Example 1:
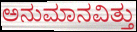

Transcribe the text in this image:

ಅನುಮಾನವಿತ್ತು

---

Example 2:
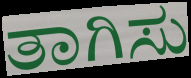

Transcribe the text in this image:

ತಾಗಿಸು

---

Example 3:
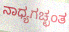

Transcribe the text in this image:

ನಾಧ್ಯಗಚ್ಛಂತ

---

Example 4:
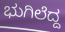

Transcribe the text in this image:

ಭುಗಿಲೆದ್ದ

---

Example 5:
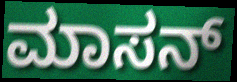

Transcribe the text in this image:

ಮಾಸನ್